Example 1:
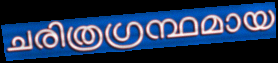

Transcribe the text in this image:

ചരിത്രഗ്രന്ഥമായ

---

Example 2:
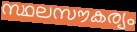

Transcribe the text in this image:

സ്ഥലസൗകര്യം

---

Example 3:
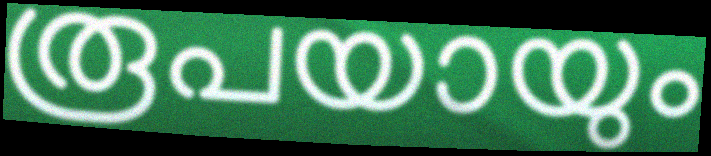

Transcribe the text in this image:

രൂപയായും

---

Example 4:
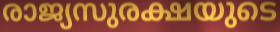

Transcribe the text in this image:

രാജ്യസുരക്ഷയുടെ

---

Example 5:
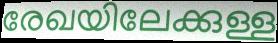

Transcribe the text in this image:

രേഖയിലേക്കുള്ള